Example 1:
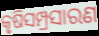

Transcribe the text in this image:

କୃଷିସମ୍ପ୍ରସାରଣ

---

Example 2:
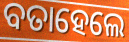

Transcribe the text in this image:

ବତାହେଲେ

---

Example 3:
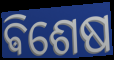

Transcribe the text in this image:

ଵିଶେଷ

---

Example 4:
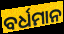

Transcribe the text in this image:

ବର୍ଧମାନ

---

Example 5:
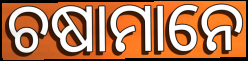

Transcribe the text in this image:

ଚଷାମାନେ